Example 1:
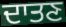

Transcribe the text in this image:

ਦਾਤਣ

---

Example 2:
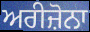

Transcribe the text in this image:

ਅਰੀਜ਼ੋਨਾ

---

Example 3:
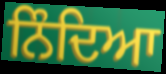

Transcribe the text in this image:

ਨਿੰਦਿਆ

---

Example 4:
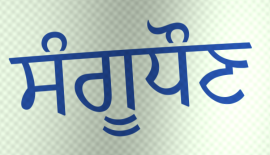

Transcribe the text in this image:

ਸੰਗੂਧੌਣ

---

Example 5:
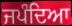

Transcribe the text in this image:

ਜਪੰਦਿਆ